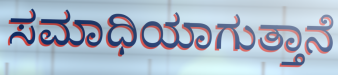
ಸಮಾಧಿಯಾಗುತ್ತಾನೆ